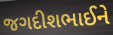
જગદીશભાઈને